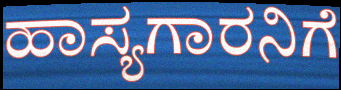
ಹಾಸ್ಯಗಾರನಿಗೆ